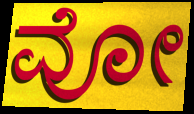
ವೋ